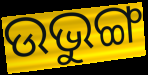
ଉଭୁଙ୍ଗ